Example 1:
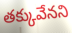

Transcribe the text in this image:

తక్కువేనని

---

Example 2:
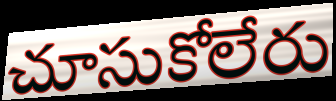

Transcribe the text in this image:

చూసుకోలేరు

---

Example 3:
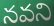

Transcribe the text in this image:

నవని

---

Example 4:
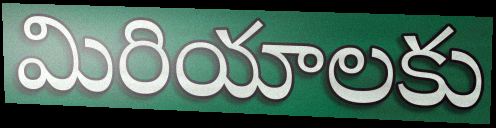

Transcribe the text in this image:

మిరియాలకు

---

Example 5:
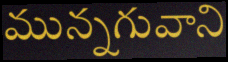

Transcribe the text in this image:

మున్నగువాని